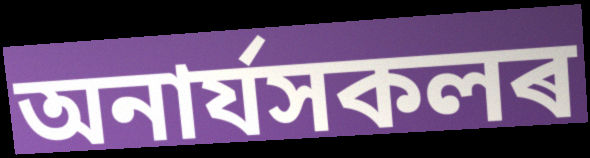
অনাৰ্যসকলৰ